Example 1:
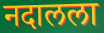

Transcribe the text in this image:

नदालला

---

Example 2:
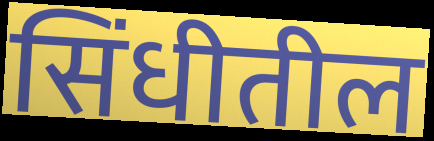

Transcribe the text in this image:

सिंधीतील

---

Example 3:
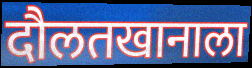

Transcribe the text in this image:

दौलतखानाला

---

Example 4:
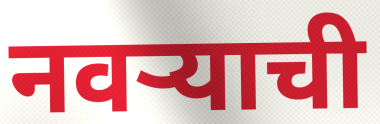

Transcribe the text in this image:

नवर्‍याची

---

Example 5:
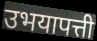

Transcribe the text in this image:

उभयापत्ती